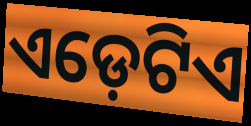
ଏଡ଼େଟିଏ